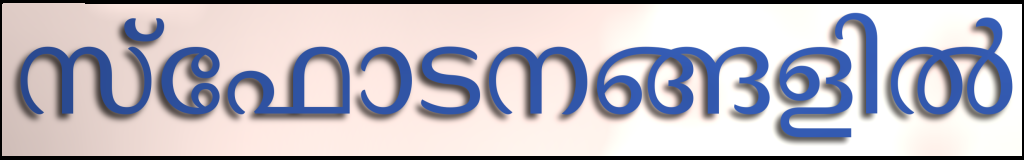
സ്ഫോടനങ്ങളിൽ